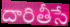
దారితీసే